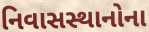
નિવાસસ્થાનોના